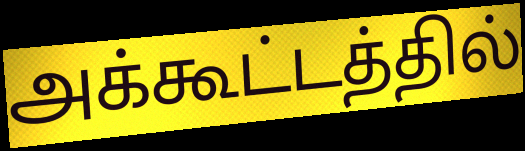
அக்கூட்டத்தில்